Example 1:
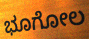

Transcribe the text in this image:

ಭೂಗೋಲ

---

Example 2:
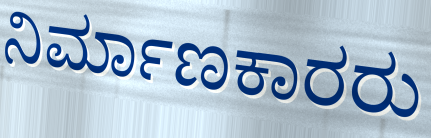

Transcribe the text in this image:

ನಿರ್ಮಾಣಕಾರರು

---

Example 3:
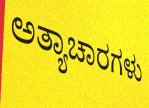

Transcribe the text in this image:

ಅತ್ಯಾಚಾರಗಳು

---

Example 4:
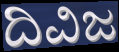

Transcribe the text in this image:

ದಿವಿಜ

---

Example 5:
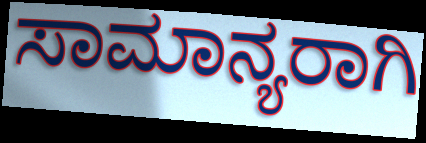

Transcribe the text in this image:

ಸಾಮಾನ್ಯರಾಗಿ